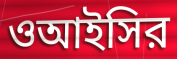
ওআইসির